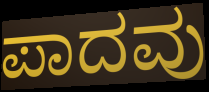
ಪಾದವು